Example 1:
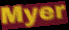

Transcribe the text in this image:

Myer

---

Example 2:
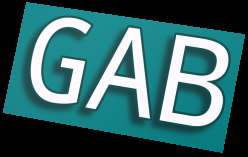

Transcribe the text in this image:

GAB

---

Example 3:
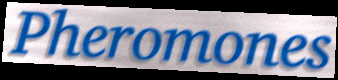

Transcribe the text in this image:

Pheromones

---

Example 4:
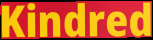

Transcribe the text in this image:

Kindred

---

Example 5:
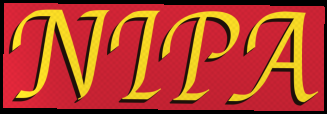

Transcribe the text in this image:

NIPA